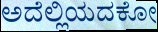
ಅದೆಲ್ಲಿಯದಕೋ